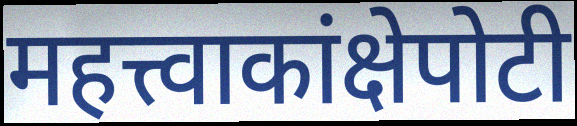
महत्त्वाकांक्षेपोटी